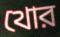
থোর